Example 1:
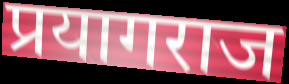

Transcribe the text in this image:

प्रयागराज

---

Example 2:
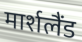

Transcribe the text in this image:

मार्शलैंड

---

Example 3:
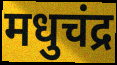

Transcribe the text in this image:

मधुचंद्र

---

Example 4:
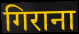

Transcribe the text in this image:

गिराना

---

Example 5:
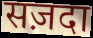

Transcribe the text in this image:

सज़दा